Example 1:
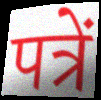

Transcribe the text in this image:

पत्रें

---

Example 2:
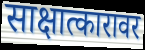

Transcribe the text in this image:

साक्षात्कारावर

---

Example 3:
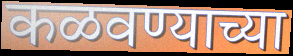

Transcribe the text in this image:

कळवण्याच्या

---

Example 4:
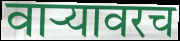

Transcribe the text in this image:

वाऱ्यावरच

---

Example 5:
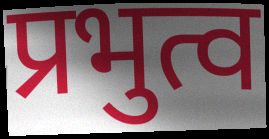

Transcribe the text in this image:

प्रभुत्व